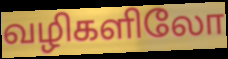
வழிகளிலோ